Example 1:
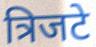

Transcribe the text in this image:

त्रिजटे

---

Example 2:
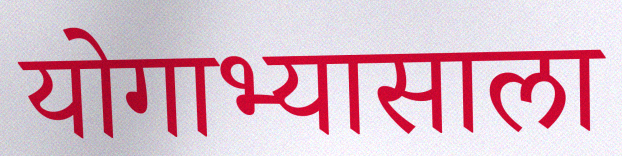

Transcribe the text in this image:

योगाभ्यासाला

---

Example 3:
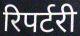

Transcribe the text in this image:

रिपर्टरी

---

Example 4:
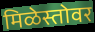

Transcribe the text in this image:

मिळेस्तोवर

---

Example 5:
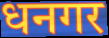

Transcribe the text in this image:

धनगर